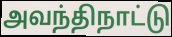
அவந்திநாட்டு